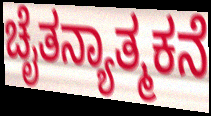
ಚೈತನ್ಯಾತ್ಮಕನೆ